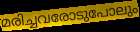
മരിച്ചവരോടുപോലും